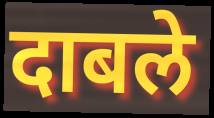
दाबले